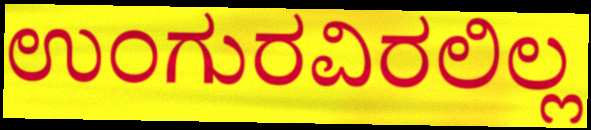
ಉಂಗುರವಿರಲಿಲ್ಲ